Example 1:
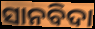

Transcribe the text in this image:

ସାନବିଦା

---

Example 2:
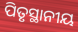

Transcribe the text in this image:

ପିତୃସ୍ଥାନୀୟ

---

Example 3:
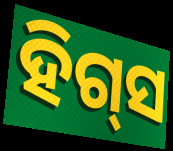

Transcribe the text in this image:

ହିଗ୍‌ସ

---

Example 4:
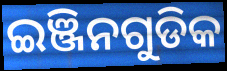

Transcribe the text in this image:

ଇଞ୍ଜିନଗୁଡିକ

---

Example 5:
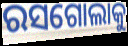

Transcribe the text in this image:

ରସଗୋଲାକୁ